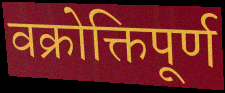
वक्रोक्तिपूर्ण